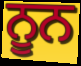
ਨੂਨ